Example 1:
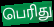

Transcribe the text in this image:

பெரிது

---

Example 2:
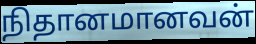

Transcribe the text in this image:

நிதானமானவன்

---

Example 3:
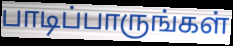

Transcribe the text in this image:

பாடிப்பாருங்கள்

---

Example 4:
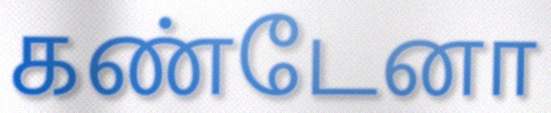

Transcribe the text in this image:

கண்டேனா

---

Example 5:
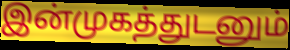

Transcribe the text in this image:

இன்முகத்துடனும்